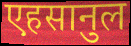
एहसानुल